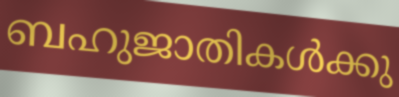
ബഹുജാതികൾക്കു